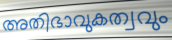
അതിഭാവുകത്വവും